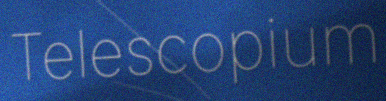
Telescopium